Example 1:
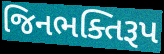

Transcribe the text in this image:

જિનભક્તિરૂપ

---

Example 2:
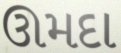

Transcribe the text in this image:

ઊમદા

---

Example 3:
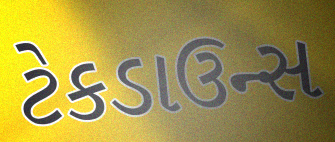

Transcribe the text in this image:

ટેકડાઉન્સ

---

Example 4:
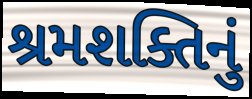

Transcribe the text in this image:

શ્રમશક્તિનું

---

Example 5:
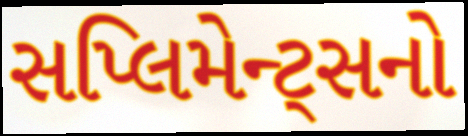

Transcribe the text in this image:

સપ્લિમેન્ટ્સનો